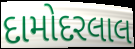
દામોદરલાલ